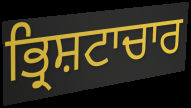
ਭ੍ਰਿਸ਼ਟਾਚਾਰ